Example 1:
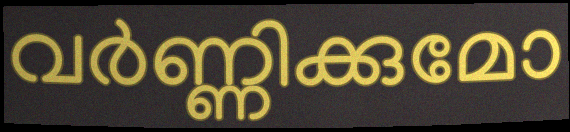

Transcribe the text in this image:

വർണ്ണിക്കുമോ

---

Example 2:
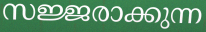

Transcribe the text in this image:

സജ്ജരാക്കുന്ന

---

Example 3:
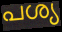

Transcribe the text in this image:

പശ്യ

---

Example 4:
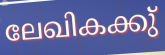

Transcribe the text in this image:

ലേഖികക്കു്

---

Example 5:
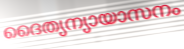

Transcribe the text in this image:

ദൈത്യന്യായാസനം